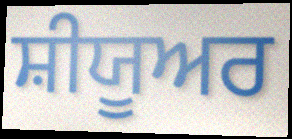
ਸ਼ੀਯੂਅਰ